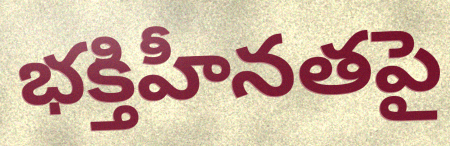
భక్తిహీనతపై